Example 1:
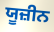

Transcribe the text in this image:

ਯੂਜ਼ੀਨ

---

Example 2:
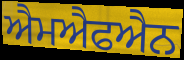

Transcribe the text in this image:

ਐਮਐਫਐਨ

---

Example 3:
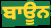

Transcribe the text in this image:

ਬਾਊਨ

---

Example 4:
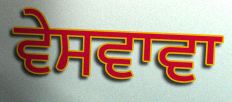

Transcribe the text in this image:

ਵੇਸਵਾਵਾ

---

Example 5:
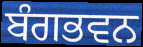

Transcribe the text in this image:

ਬੰਗਭਵਨ